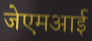
जेएमआई